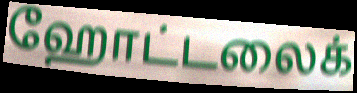
ஹோட்டலைக்